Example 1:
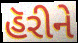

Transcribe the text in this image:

હૅરીને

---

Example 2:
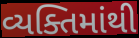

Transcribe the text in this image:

વ્યક્તિમાંથી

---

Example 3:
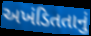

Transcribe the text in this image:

અખંડિતતાનું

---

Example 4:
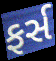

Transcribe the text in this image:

ફર્સ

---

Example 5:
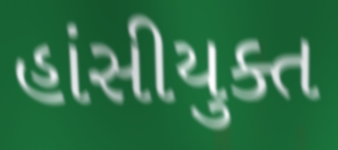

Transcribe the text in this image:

હાંસીયુક્ત